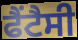
ਫੈਂਟੈਸੀ